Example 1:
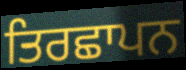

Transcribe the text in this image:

ਤਿਰਛਾਪਨ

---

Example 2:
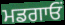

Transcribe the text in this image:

ਮਡਗਾਓਂ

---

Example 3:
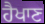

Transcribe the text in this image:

ਹੈਖਾਣ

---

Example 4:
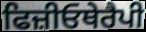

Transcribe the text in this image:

ਫਿਜ਼ੀਓਥੇਰੈਪੀ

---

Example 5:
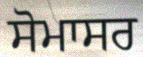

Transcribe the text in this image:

ਸੋਮਾਸਰ